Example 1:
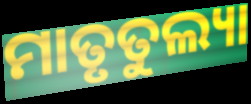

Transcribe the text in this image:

ମାତୃତୁଲ୍ୟା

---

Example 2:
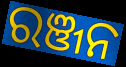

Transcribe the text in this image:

ରଞ୍ଜନ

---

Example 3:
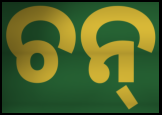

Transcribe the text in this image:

ଚନ୍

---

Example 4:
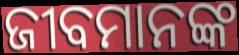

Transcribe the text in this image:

ଜୀବମାନଙ୍କ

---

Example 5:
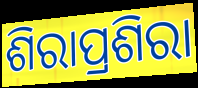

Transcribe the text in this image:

ଶିରାପ୍ରଶିରା